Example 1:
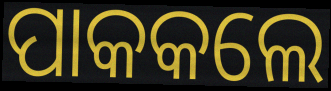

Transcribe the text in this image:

ପାକକଲେ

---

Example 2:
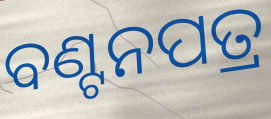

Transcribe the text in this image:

ବଣ୍ଟନପତ୍ର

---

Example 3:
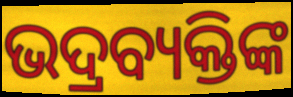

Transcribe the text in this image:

ଭଦ୍ରବ୍ୟକ୍ତିଙ୍କ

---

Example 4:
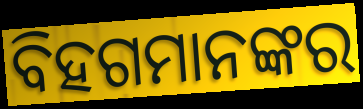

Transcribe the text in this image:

ବିହଗମାନଙ୍କର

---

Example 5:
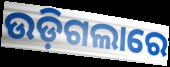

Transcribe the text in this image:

ଉଡ଼ିଗଲାରେ